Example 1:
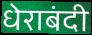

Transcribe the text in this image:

धेराबंदी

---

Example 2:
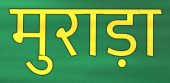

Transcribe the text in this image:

मुराड़ा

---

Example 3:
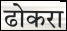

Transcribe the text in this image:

ढोकरा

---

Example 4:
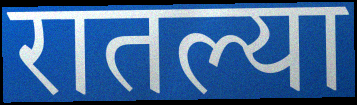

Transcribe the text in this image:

रातल्या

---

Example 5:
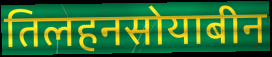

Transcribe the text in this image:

तिलहनसोयाबीन